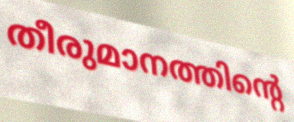
തീരുമാനത്തിന്റെ